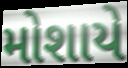
મોશાયે